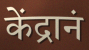
केंद्रानं